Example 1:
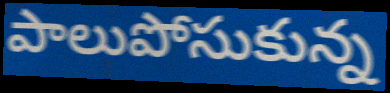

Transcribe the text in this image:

పాలుపోసుకున్న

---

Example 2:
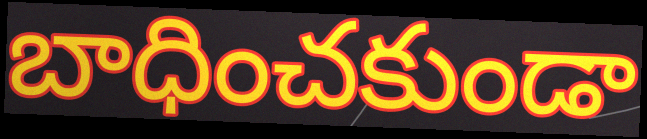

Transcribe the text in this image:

బాధించకుండా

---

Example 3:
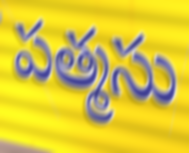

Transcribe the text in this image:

పత్మసు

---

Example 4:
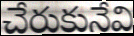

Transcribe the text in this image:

చేరుకునేవి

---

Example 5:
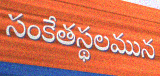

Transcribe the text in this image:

సంకేతస్థలమున